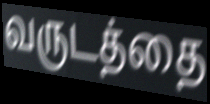
வருடத்தை